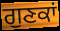
ਗੁਣਕਾਂ